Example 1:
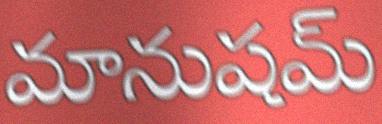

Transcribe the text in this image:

మానుషమ్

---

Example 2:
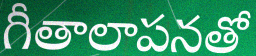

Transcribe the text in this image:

గీతాలాపనతో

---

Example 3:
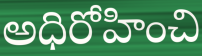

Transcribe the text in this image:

అధిరోహించి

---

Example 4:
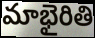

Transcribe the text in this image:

మాభైరితి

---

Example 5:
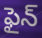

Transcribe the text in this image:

ఫైన్